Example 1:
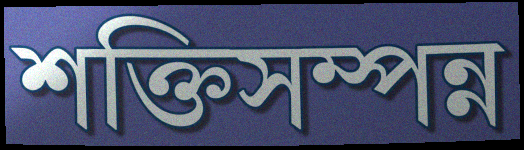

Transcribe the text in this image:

শক্তিসম্পন্ন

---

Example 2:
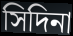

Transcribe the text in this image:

সিদিনা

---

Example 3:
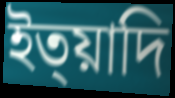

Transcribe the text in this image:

ইত্য়াদি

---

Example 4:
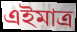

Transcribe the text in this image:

এইমাত্ৰ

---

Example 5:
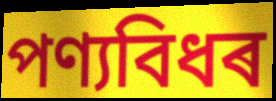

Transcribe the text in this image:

পণ্যবিধৰ